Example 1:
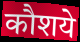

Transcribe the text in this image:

कौशये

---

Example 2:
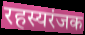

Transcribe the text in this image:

रहस्यरंजक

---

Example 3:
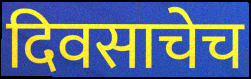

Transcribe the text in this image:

दिवसाचेच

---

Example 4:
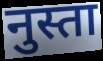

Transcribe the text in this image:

नुस्ता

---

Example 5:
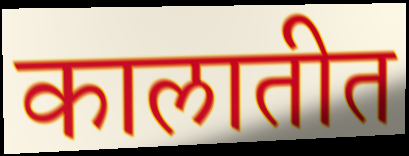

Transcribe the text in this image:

कालातीत